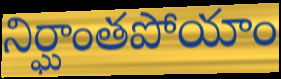
నిర్ఘాంతపోయాం